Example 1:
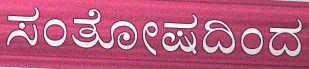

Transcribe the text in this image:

ಸಂತೋಷದಿಂದ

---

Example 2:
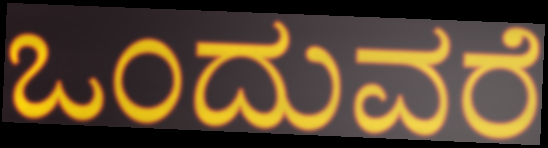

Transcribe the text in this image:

ಒಂದುವರೆ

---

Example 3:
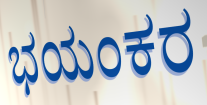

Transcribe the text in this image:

ಭಯಂಕರ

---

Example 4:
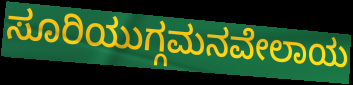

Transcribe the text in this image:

ಸೂರಿಯುಗ್ಗಮನವೇಲಾಯ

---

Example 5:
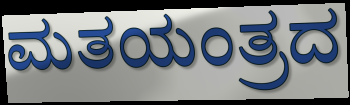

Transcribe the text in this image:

ಮತಯಂತ್ರದ